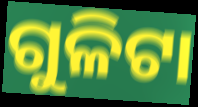
ଗୁଳିଟା